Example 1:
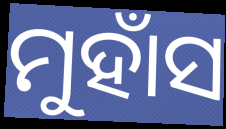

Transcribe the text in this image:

ମୁହାଁସ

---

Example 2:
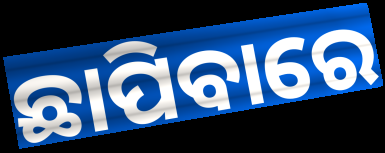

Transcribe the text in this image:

ଛାପିବାରେ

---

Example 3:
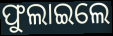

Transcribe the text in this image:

ଫୁଲାଇଲେ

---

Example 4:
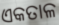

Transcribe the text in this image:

ଏକତାଳ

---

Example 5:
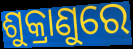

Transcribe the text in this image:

ଶୁକ୍ରାଣୁରେ